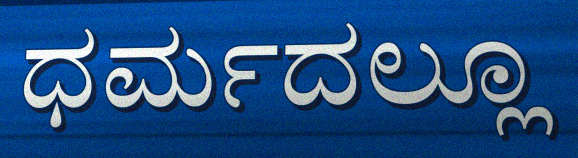
ಧರ್ಮದಲ್ಲೂ